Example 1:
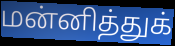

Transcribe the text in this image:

மன்னித்துக்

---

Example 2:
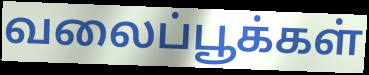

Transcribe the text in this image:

வலைப்பூக்கள்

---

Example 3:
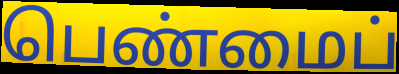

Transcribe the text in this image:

பெண்மைப்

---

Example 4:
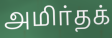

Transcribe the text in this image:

அமிர்தக்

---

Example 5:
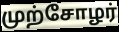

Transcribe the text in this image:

முற்சோழர்